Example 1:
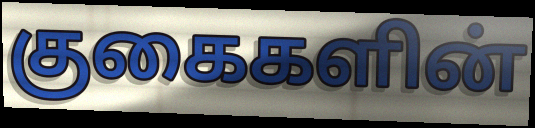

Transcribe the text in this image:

குகைகளின்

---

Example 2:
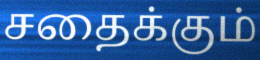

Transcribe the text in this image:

சதைக்கும்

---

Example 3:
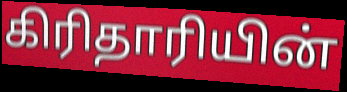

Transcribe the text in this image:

கிரிதாரியின்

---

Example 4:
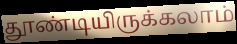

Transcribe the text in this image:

தூண்டியிருக்கலாம்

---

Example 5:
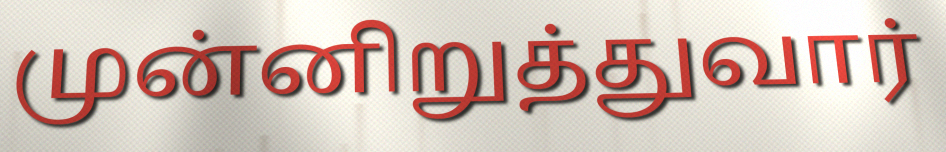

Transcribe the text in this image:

முன்னிறுத்துவார்